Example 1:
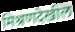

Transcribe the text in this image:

मिश्रणदेखील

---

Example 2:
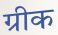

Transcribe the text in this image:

ग्रीक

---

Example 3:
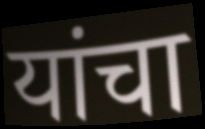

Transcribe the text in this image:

यांचा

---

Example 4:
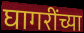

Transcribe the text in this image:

घागरींच्या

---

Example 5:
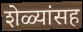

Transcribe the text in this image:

शेळ्यांसह